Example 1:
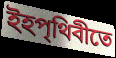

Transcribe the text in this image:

ইহপৃথিবীতে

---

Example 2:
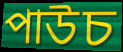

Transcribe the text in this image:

পাউচ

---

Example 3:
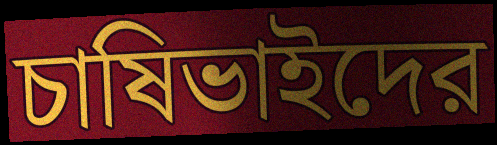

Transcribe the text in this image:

চাষিভাইদের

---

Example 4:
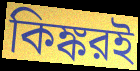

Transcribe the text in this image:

কিঙ্করই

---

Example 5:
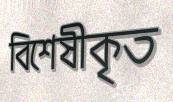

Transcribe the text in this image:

বিশেষীকৃত